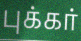
புக்கர்